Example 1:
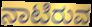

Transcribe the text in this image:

ನಾಟಿರುವ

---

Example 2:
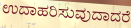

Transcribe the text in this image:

ಉದಾಹರಿಸುವುದಾದರೆ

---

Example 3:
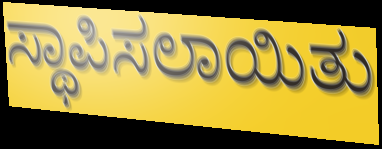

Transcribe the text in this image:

ಸ್ಥಾಪಿಸಲಾಯಿತು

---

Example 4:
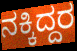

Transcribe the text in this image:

ನಕ್ಕಿದ್ದರ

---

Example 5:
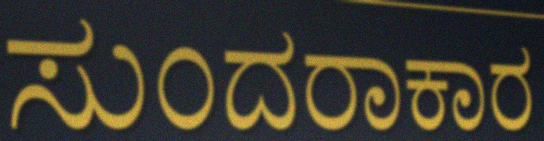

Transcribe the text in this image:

ಸುಂದರಾಕಾರ